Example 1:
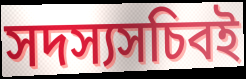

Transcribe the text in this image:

সদস্যসচিবই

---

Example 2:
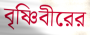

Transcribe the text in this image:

বৃষ্ণিবীরের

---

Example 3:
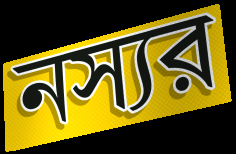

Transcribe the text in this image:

নস্যর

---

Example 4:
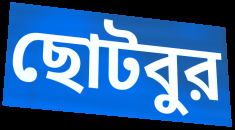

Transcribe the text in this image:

ছোটবুর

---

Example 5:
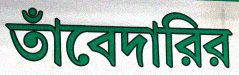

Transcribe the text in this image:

তাঁবেদারির